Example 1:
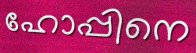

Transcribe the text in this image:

ഹോപ്പിനെ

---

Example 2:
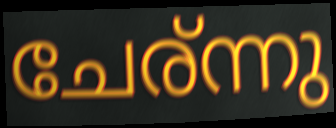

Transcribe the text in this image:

ചേര്ന്നു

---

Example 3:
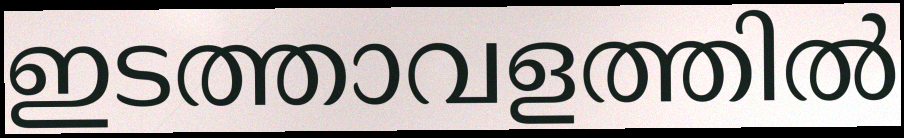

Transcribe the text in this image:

ഇടത്താവളത്തിൽ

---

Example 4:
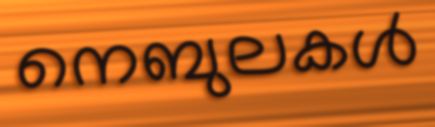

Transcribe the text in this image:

നെബുലകൾ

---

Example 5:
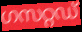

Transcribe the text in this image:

ഗസറ്റഡ്